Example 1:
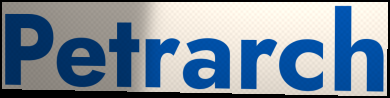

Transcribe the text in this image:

Petrarch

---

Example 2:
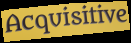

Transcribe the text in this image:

Acquisitive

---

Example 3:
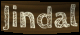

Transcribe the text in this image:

Jindal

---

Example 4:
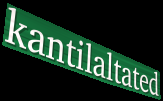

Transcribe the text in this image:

kantilaltated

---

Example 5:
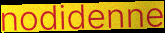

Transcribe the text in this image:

nodidenne